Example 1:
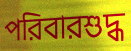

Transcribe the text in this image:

পরিবারশুদ্ধ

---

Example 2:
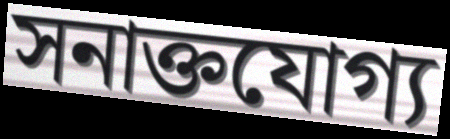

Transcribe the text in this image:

সনাক্তযোগ্য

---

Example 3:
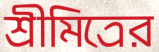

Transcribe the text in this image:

শ্রীমিত্রের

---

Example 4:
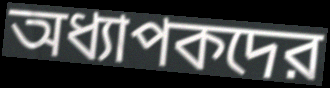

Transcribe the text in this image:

অধ্যাপকদের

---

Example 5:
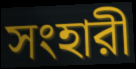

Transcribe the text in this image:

সংহারী